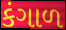
કંગાળ